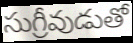
సుగ్రీవుడుతో